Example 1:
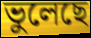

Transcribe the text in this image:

ভুলেছে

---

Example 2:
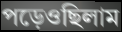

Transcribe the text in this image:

পড়েওছিলাম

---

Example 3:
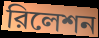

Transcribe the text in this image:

রিলেশন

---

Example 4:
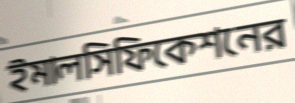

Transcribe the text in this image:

ইমালসিফিকেশনের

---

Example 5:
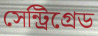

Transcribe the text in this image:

সেন্ট্রিগ্রেড